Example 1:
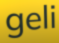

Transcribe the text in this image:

geli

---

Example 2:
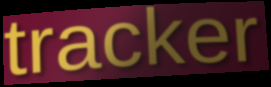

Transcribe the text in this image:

tracker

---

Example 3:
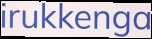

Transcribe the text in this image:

irukkenga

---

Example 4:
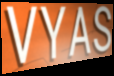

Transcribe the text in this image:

VYAS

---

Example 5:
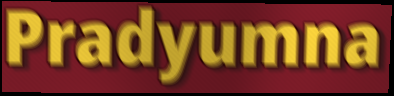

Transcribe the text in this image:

Pradyumna